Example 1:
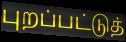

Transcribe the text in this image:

புறப்பட்டுத்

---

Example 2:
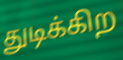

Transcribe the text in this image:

துடிக்கிற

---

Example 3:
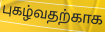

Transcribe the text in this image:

புகழ்வதற்காக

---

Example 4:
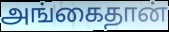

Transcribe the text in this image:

அங்கைதான்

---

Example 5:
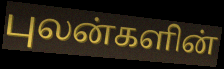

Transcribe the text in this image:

புலன்களின்